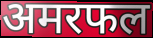
अमरफल